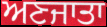
ਅਣਜਾਤਾ